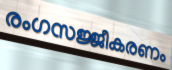
രംഗസജ്ജീകരണം